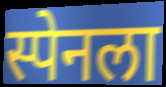
स्पेनला